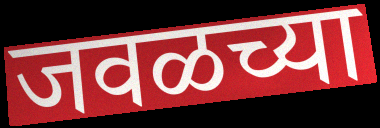
जवळच्या